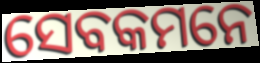
ସେବକମନେ